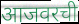
आजवरची